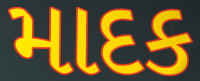
માદક